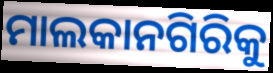
ମାଲକାନଗିରିକୁ